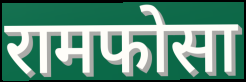
रामफोसा